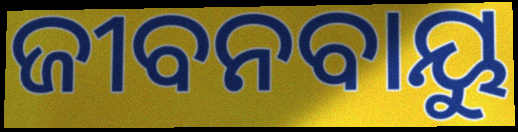
ଜୀବନବାୟୁ